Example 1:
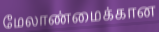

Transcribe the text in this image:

மேலாண்மைக்கான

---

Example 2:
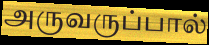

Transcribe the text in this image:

அருவருப்பால்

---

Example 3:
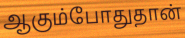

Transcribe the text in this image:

ஆகும்போதுதான்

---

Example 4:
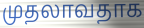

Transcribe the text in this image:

முதலாவதாக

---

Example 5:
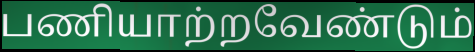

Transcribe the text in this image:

பணியாற்றவேண்டும்